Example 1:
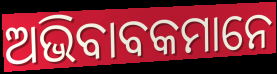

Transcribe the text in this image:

ଅଭିବାବକମାନେ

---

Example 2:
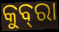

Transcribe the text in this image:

କୁବ୍‍ରା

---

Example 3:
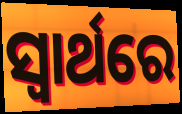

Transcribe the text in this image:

ସ୍ବାର୍ଥରେ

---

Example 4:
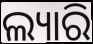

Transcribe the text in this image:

ଲ୍ୟାରି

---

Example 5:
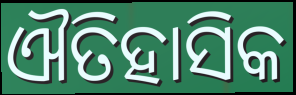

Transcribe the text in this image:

ଐତିହାସିକ